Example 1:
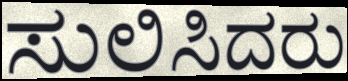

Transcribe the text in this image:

ಸುಲಿಸಿದರು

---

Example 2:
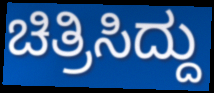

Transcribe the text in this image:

ಚಿತ್ರಿಸಿದ್ದು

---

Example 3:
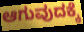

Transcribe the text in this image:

ಆಗುವುದಕ್ಕೆ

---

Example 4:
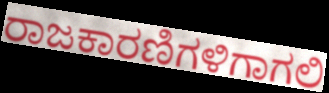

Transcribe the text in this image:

ರಾಜಕಾರಣಿಗಳಿಗಾಗಲಿ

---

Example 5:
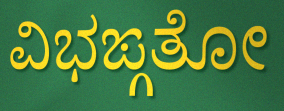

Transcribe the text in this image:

ವಿಭಙ್ಗತೋ